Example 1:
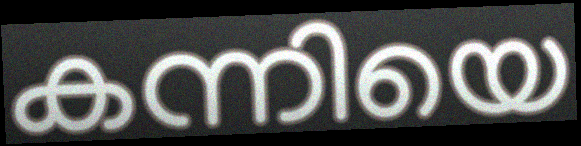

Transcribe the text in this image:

കന്നിയെ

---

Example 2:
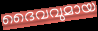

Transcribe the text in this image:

ദൈവവുമായ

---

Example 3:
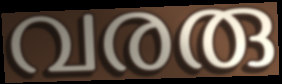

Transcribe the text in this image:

വരരു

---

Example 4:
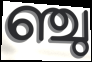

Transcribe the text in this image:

ഞ്ചു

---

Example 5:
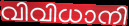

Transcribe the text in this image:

വിവിധാനി